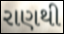
રાણથી